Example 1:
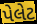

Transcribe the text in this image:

પેલેટ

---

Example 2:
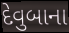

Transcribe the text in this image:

દેવુબાના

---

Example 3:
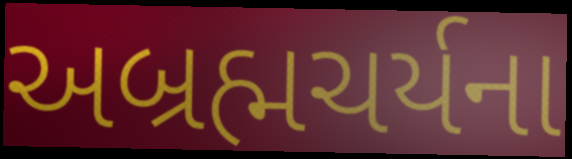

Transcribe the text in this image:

અબ્રહ્મચર્યના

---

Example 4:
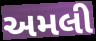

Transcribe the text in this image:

અમલી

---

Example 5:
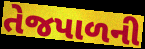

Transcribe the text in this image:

તેજપાળની